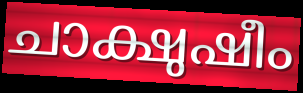
ചാക്ഷുഷീം